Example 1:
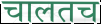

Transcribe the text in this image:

चालतच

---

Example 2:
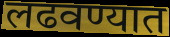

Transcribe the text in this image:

लढवण्यात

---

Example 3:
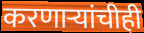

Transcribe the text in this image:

करणाऱ्यांचीही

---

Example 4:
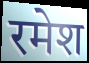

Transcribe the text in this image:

रमेश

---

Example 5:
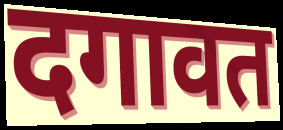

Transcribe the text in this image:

दगावत